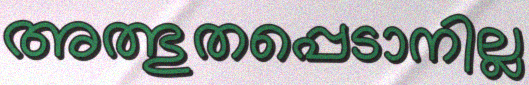
അത്ഭുതപ്പെടാനില്ല